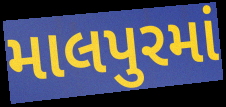
માલપુરમાં